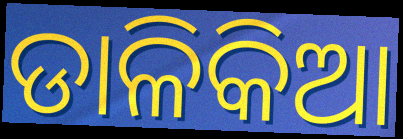
ଡାଳିକିଆ